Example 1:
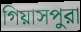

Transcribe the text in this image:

গিয়াসপুরা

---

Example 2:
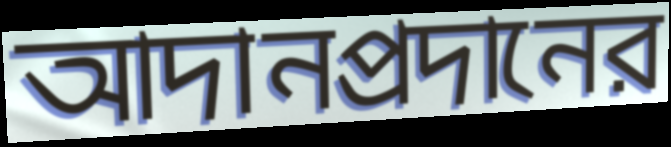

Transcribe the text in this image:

আদানপ্রদানের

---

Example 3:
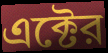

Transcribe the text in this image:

এক্টের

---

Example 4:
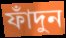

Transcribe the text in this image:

ফাঁদুন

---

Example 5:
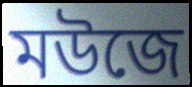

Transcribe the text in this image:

মউজে